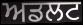
ਅਡਲਟ